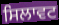
ਸਿਲਾਵਟ